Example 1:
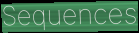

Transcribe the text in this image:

Sequences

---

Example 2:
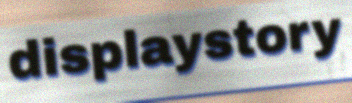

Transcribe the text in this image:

displaystory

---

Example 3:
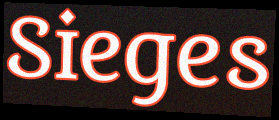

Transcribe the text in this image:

Sieges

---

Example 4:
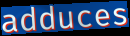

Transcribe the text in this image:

adduces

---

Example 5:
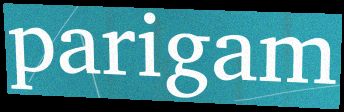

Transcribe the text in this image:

parigam